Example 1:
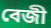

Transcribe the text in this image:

বেজী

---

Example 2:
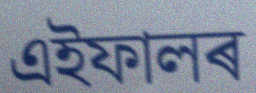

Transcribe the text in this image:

এইফালৰ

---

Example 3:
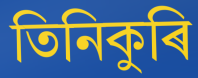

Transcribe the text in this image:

তিনিকুৰি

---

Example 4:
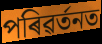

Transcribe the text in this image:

পৰিৱৰ্তনত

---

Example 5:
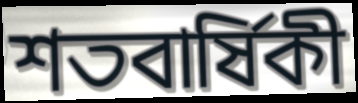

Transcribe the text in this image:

শতবাৰ্ষিকী